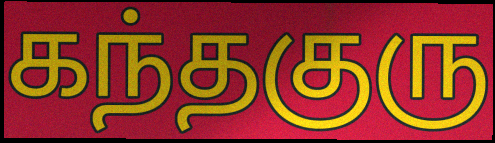
கந்தகுரு